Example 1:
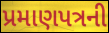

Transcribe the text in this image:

પ્રમાણપત્રની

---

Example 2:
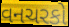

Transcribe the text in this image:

વનચરકો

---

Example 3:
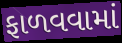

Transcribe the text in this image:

ફાળવવામાં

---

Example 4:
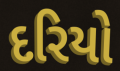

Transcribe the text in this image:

દરિયો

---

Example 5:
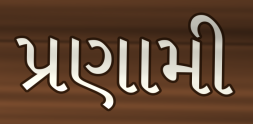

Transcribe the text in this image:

પ્રણામી